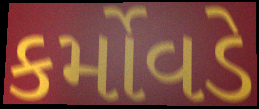
કર્મોવડે